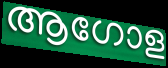
ആഗോള